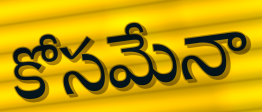
కోసమేనా